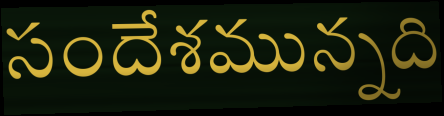
సందేశమున్నది